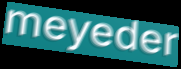
meyeder